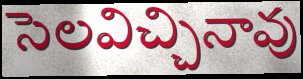
సెలవిచ్చినావు